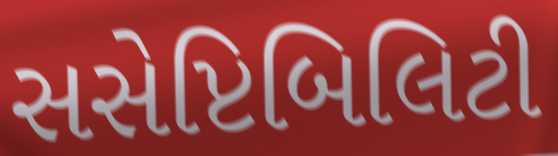
સસેપ્ટિબિલિટી